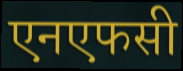
एनएफसी